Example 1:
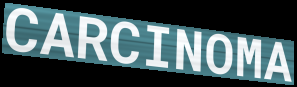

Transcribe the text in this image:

CARCINOMA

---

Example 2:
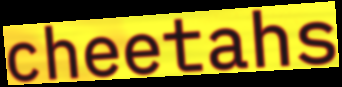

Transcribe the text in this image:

cheetahs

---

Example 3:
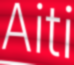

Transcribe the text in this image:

Aiti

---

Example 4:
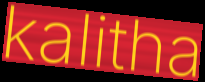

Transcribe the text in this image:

kalitha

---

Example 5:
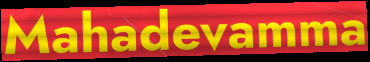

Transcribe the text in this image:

Mahadevamma